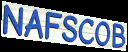
NAFSCOB